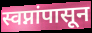
स्वप्नांपासून